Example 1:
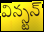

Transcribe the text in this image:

విన్స్టన్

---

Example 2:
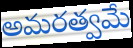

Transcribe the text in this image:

అమరత్వమే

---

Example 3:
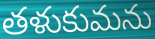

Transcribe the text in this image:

తళుకుమను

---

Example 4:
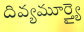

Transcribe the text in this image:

దివ్యమూర్త్యై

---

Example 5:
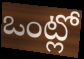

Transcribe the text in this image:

ఒంట్లో